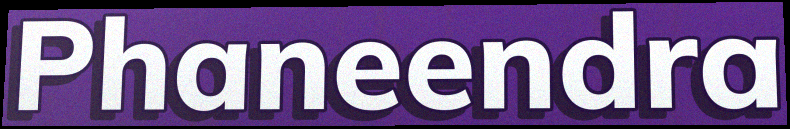
Phaneendra